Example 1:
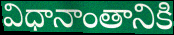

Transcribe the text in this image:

విధానాంతానికి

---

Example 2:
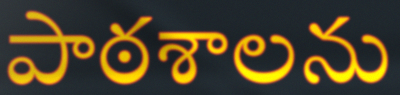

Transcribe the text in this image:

పాఠశాలను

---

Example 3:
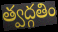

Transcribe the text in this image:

త్వద్గతిం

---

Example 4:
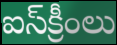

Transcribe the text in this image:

ఐస్‌క్రీంలు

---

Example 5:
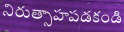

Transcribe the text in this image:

నిరుత్సాహపడకండి